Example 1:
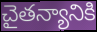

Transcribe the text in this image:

చైతన్యానికి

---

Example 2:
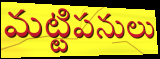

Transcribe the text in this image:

మట్టిపనులు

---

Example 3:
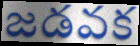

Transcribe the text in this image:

జడవక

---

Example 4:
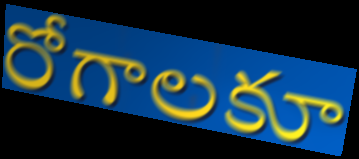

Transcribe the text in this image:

రోగాలకూ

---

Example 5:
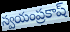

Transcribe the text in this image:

స్వయంప్రకాష్